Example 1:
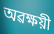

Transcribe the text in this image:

অৱক্ষয়ী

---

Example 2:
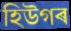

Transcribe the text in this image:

হিউগৰ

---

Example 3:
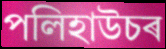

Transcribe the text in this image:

পলিহাউচৰ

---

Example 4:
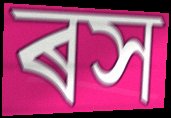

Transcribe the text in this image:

ৰস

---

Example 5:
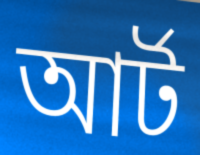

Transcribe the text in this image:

আৰ্ট